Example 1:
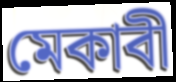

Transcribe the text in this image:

মেকাবী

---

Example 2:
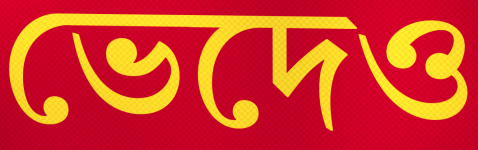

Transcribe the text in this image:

ভেদেও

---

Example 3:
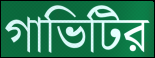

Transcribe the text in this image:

গাভিটির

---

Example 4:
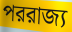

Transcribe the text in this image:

পররাজ্য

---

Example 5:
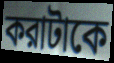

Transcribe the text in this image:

করাটাকে